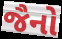
જૈનો